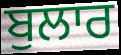
ਬੁਲਾਰ